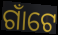
ଗାଁଟେ